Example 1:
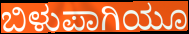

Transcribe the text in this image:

ಬಿಳುಪಾಗಿಯೂ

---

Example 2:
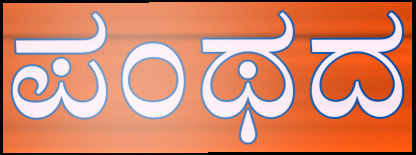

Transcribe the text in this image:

ಪಂಥದ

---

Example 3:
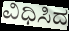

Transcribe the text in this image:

ವಿಧಿಸಿದ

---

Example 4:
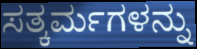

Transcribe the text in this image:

ಸತ್ಕರ್ಮಗಳನ್ನು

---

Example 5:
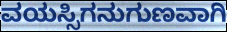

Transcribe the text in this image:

ವಯಸ್ಸಿಗನುಗುಣವಾಗಿ